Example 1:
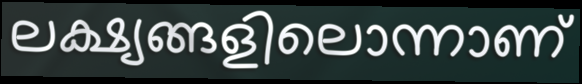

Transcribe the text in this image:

ലക്ഷ്യങ്ങളിലൊന്നാണ്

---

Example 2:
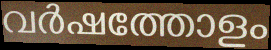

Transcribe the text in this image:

വർഷത്തോളം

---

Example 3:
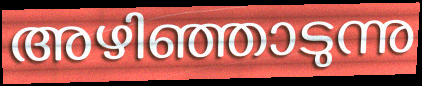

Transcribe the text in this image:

അഴിഞ്ഞാടുന്നു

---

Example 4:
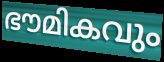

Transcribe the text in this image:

ഭൗമികവും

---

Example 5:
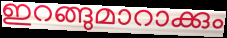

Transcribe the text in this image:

ഇറങ്ങുമാറാക്കും